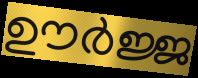
ഊർജ്ജ